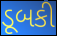
ડૂબકી